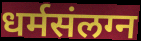
धर्मसंलग्न